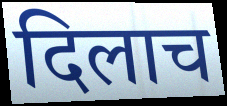
दिलाच